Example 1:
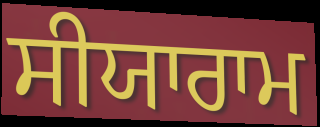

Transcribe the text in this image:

ਸੀਯਾਰਾਮ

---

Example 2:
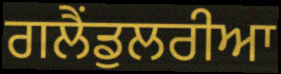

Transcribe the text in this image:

ਗਲੈਂਡੁਲਰੀਆ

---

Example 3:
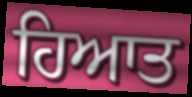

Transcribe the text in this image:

ਹਿਆਤ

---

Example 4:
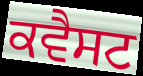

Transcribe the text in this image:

ਕਵੈਸਟ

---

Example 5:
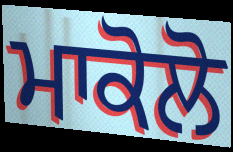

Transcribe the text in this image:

ਮਾਕੋਲੋ